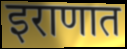
इराणात